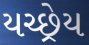
યચ્છ્રેય